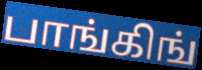
பாங்கிங்